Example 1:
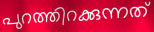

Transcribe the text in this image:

പുറത്തിറക്കുന്നത്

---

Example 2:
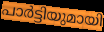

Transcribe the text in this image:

പാർട്ടിയുമായി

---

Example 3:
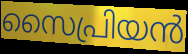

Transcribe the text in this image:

സൈപ്രിയൻ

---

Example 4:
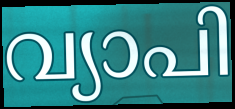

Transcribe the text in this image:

വ്യാപി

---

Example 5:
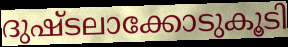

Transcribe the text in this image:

ദുഷ്ടലാക്കോടുകൂടി